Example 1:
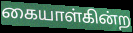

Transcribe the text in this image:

கையாள்கின்ற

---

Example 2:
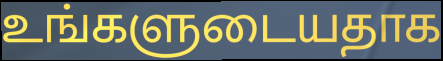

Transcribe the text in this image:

உங்களுடையதாக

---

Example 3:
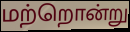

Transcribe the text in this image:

மற்றொன்று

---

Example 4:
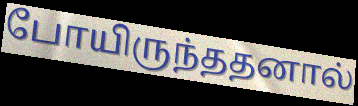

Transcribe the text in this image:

போயிருந்ததனால்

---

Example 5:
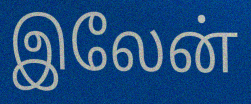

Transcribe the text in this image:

இலேன்